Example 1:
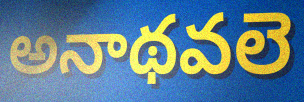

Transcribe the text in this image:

అనాథవలె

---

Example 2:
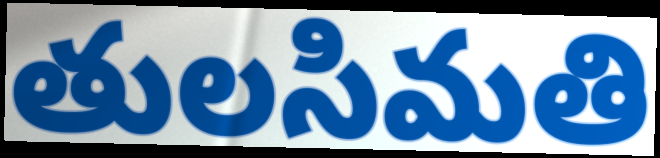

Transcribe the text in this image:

తులసిమతి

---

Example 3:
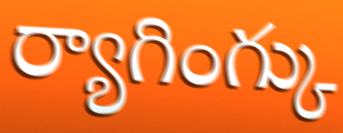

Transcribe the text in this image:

ర్యాగింగ్కు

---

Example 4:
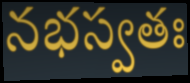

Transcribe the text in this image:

నభస్వతః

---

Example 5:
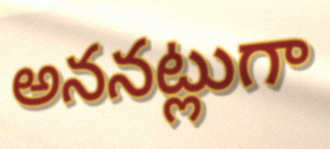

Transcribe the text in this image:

అననట్లుగా